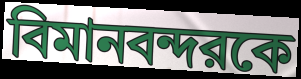
বিমানবন্দরকে